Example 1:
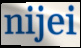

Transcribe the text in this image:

nijei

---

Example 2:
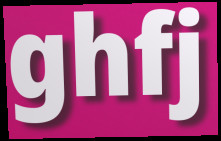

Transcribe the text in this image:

ghfj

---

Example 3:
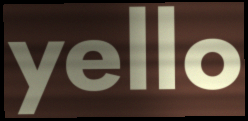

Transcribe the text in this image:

yello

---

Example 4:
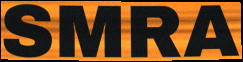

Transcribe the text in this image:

SMRA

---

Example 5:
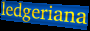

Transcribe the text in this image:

ledgeriana